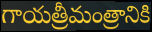
గాయత్రీమంత్రానికి